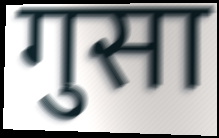
गुसा